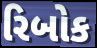
રિબોક